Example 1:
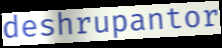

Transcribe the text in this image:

deshrupantor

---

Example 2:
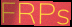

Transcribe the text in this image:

FRPs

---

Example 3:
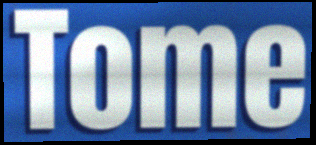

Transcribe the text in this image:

Tome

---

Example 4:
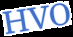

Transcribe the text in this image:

HVO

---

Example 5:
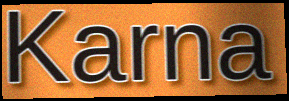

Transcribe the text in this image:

Karna